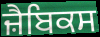
ਜ਼ੈਬਿਕਸ